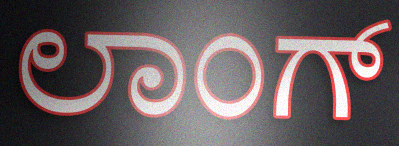
ಲಾಂಗ್